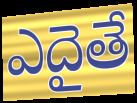
ఎదైతే